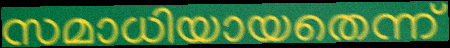
സമാധിയായതെന്ന്